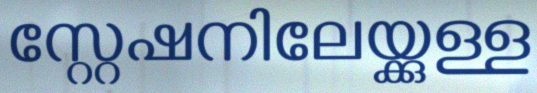
സ്റ്റേഷനിലേയ്ക്കുള്ള